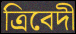
ত্রিবেদী